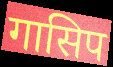
गासिप